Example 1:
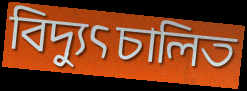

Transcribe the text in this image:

বিদ্যুৎচালিত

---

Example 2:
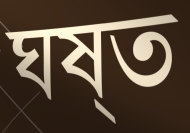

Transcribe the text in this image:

ঘষ্ত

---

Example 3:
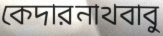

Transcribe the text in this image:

কেদারনাথবাবু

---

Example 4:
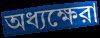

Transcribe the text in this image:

অধ্যক্ষেরা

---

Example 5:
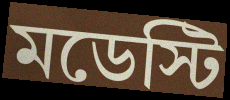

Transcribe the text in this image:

মডেস্টি